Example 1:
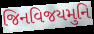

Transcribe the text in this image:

જિનવિજયમુનિ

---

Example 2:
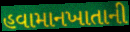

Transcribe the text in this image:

હવામાનખાતાની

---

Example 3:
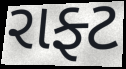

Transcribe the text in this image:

રાફ્ટ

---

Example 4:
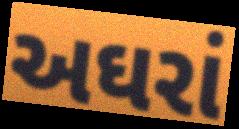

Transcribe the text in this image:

અઘરાં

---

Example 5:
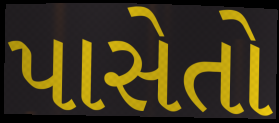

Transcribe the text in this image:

પાસેતો